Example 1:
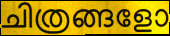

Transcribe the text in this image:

ചിത്രങ്ങളോ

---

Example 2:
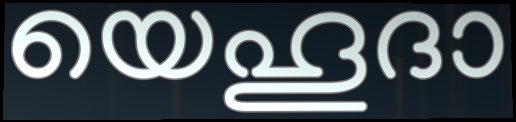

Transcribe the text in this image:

യെഹൂദാ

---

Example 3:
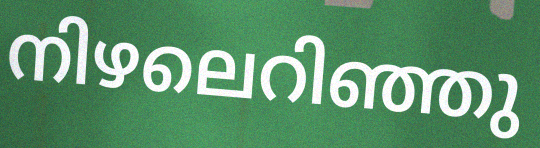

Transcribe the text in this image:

നിഴലെറിഞ്ഞു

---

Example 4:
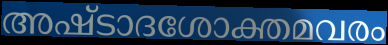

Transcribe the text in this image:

അഷ്ടാദശോക്തമവരം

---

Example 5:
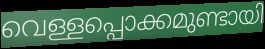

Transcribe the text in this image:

വെള്ളപ്പൊക്കമുണ്ടായി